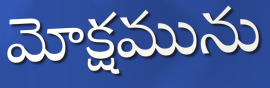
మోక్షమును